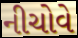
નીચોવે